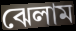
ঝেলাম